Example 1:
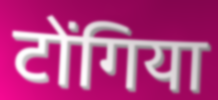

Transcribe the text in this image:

टोंगिया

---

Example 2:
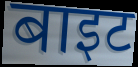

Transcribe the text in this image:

बाइट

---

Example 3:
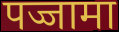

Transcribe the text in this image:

पज्जामा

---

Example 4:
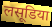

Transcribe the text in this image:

लसूडिया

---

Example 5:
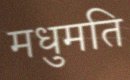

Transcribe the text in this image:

मधुमति